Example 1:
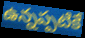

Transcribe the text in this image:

ఉన్నప్పటికే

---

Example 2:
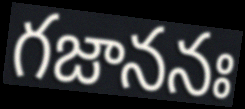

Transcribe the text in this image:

గజాననః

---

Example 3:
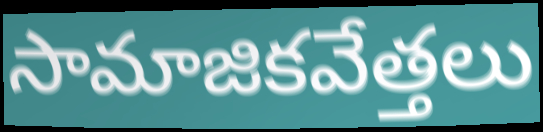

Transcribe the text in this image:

సామాజికవేత్తలు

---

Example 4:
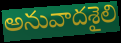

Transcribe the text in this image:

అనువాదశైలి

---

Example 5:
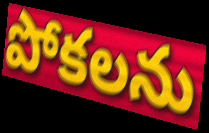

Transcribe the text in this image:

పోకలను